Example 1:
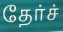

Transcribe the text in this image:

தேர்ச்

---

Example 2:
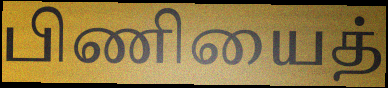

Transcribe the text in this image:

பிணியைத்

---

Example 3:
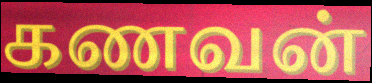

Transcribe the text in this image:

கணவன்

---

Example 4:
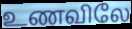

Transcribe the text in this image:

உணவிலே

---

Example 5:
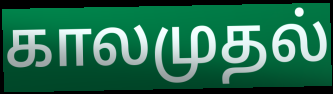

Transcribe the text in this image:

காலமுதல்